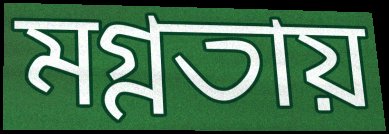
মগ্নতায়